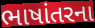
ભાષાંતરના